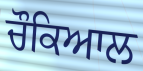
ਚੌਕਿਆਲ